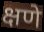
क्षणे